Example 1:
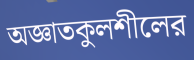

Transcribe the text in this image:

অজ্ঞাতকুলশীলের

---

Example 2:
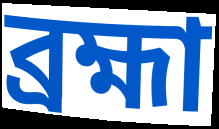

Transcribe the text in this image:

ব্রহ্মা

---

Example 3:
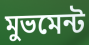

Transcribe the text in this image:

মুভমেন্ট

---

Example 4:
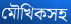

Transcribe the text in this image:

মৌখিকসহ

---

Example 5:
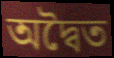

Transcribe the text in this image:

অদ্বৈত